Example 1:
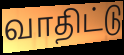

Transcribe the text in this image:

வாதிட்டு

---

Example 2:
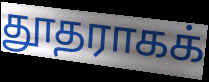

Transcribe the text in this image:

தூதராகக்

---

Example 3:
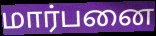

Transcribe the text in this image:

மார்பனை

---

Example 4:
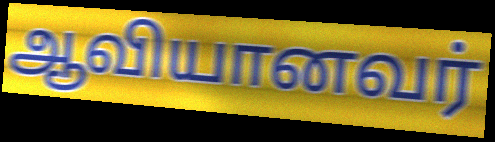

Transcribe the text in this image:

ஆவியானவர்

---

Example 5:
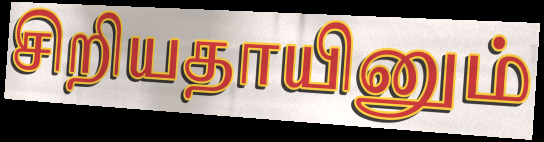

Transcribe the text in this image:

சிறியதாயினும்